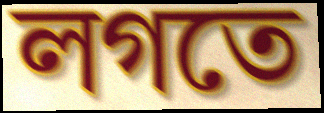
লগতে